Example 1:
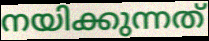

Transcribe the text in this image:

നയിക്കുന്നത്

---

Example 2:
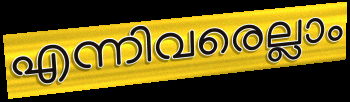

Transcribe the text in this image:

എന്നിവരെല്ലാം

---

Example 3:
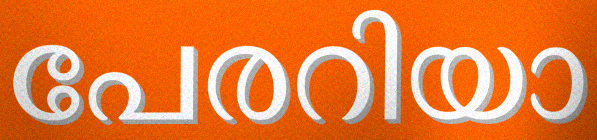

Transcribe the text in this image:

പേരറിയാ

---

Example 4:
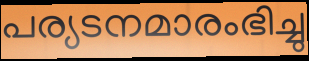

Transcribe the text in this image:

പര്യടനമാരംഭിച്ചു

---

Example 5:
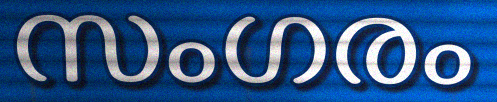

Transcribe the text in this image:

സംഗരം